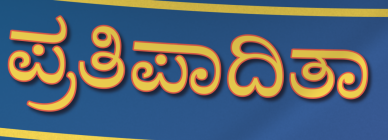
ಪ್ರತಿಪಾದಿತಾ